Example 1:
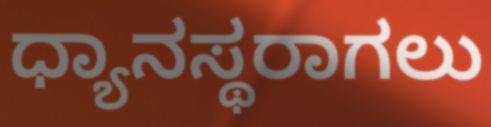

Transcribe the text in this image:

ಧ್ಯಾನಸ್ಥರಾಗಲು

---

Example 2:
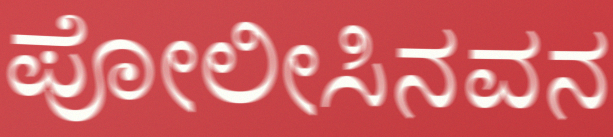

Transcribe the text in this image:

ಪೋಲೀಸಿನವನ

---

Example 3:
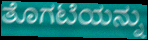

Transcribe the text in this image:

ತೊಗಟೆಯನ್ನು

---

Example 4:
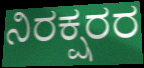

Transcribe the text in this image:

ನಿರಕ್ಷರರ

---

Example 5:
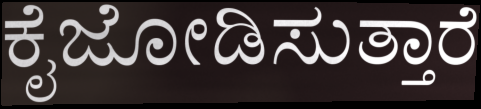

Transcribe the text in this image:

ಕೈಜೋಡಿಸುತ್ತಾರೆ